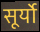
सूर्यो